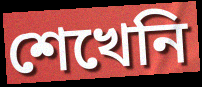
শেখেনি